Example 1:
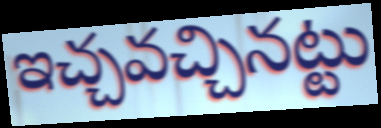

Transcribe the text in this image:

ఇచ్చవచ్చినట్టు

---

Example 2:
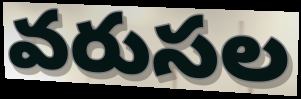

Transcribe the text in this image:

వరుసల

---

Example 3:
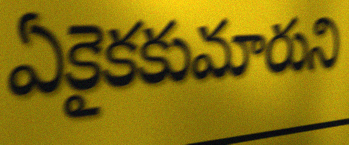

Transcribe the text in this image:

ఏకైకకుమారుని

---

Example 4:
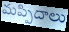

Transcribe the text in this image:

మప్పిదాలు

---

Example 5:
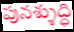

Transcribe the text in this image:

పునశ్శుద్ధి